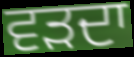
ਵੜਦਾ